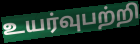
உயர்வுபற்றி